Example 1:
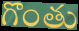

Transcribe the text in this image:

గొంతు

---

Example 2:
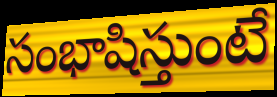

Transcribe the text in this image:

సంభాషిస్తుంటే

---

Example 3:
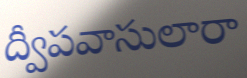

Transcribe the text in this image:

ద్వీపవాసులారా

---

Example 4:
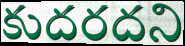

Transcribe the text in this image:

కుదరదని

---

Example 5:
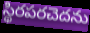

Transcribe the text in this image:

స్థిరపరచెదను